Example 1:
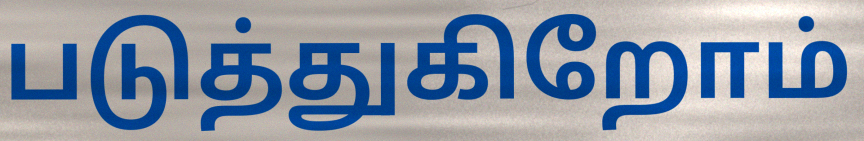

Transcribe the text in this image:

படுத்துகிறோம்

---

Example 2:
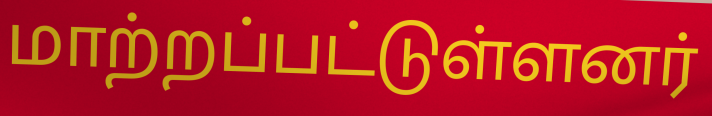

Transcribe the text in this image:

மாற்றப்பட்டுள்ளனர்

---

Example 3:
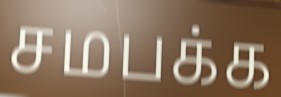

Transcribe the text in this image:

சமபக்க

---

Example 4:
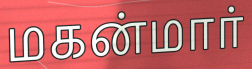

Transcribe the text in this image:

மகன்மார்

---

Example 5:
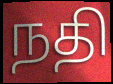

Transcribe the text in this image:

நதி